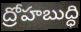
ద్రోహబుద్ధి